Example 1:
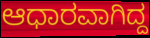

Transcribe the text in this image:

ಆಧಾರವಾಗಿದ್ದ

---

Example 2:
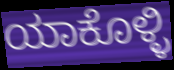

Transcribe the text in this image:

ಯಾಕೊಳ್ಳಿ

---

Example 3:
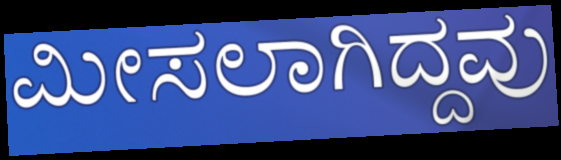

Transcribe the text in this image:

ಮೀಸಲಾಗಿದ್ದವು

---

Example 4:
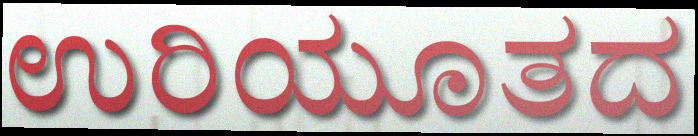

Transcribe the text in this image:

ಉರಿಯೂತದ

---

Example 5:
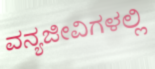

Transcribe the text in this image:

ವನ್ಯಜೀವಿಗಳಲ್ಲಿ